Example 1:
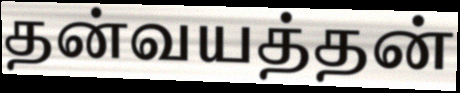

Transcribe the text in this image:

தன்வயத்தன்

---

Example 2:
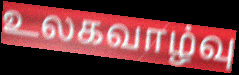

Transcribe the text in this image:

உலகவாழ்வு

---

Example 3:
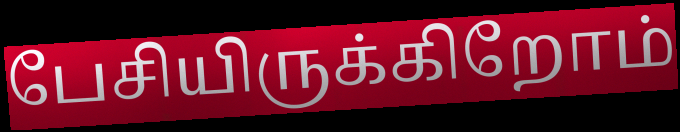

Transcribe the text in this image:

பேசியிருக்கிறோம்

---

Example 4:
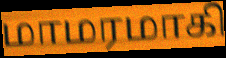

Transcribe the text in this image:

மாமரமாகி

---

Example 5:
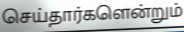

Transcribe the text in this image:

செய்தார்களென்றும்